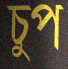
চুপ